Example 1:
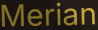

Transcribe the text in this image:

Merian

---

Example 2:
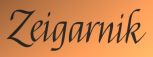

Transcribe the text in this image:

Zeigarnik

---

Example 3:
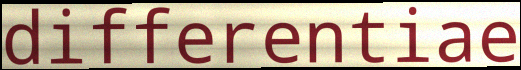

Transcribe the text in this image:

differentiae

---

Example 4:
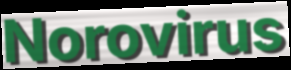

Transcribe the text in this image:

Norovirus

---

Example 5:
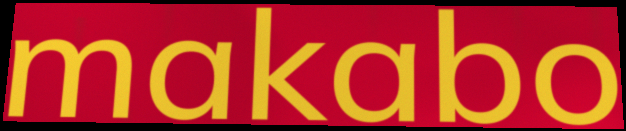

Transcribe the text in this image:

makabo